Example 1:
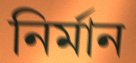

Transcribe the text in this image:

নির্মান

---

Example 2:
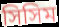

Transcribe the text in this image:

সিসিম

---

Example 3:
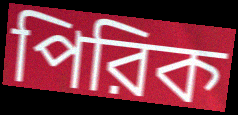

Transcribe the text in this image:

পিরিক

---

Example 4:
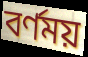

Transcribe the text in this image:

বর্ণময়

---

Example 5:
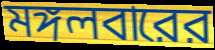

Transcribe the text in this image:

মঙ্গলবারের